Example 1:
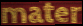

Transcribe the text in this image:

mater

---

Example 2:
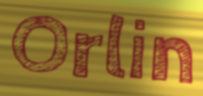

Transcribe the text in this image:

Orlin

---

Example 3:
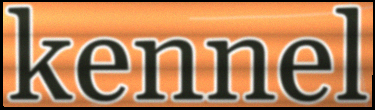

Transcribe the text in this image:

kennel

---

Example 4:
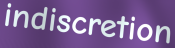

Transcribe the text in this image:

indiscretion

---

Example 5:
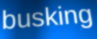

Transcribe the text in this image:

busking